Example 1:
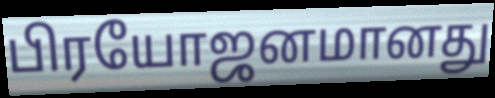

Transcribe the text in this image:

பிரயோஜனமானது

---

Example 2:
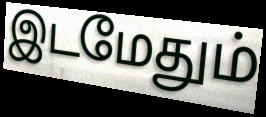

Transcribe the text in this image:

இடமேதும்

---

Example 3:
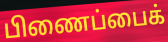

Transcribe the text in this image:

பிணைப்பைக்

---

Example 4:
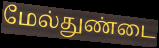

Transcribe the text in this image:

மேல்துண்டை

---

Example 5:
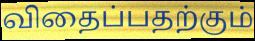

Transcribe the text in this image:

விதைப்பதற்கும்